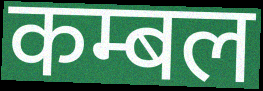
कम्बल